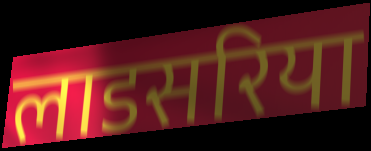
लाडसरिया